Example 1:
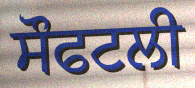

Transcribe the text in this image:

ਸੌਫਟਲੀ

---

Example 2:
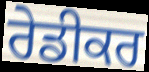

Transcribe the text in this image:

ਰੇਡੀਕਰ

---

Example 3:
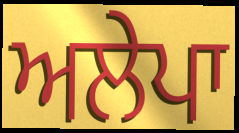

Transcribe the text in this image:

ਅਲੇਪਾ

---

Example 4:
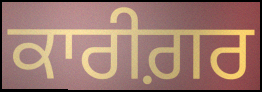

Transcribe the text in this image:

ਕਾਰੀਗ਼ਰ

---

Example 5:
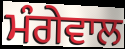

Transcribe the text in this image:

ਮੰਗੇਵਾਲ